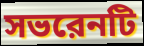
সভরেনটি